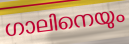
ഗാലിനെയും